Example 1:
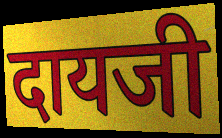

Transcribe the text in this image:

दायजी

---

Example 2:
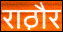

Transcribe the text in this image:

राठ़ौर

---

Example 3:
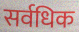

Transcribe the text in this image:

सर्वधिक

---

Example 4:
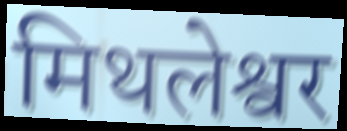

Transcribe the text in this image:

मिथलेश्वर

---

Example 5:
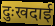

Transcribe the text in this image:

दुःखदाई